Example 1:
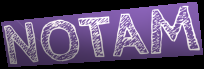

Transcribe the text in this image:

NOTAM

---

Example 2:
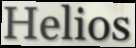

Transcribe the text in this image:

Helios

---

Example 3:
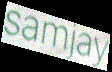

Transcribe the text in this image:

samjay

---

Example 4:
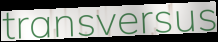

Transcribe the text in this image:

transversus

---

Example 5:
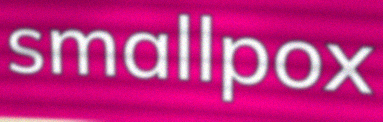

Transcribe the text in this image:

smallpox